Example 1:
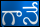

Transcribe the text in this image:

గానే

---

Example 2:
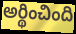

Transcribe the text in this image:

అర్థించింది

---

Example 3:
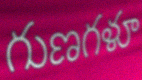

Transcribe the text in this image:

గుణగళూ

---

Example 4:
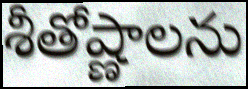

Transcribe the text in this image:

శీతోష్ణాలను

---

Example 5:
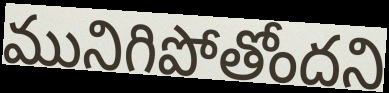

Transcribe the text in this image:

మునిగిపోతోందని